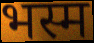
भस्म